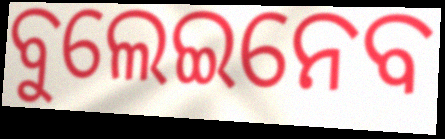
ବୁଲେଇନେବ